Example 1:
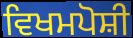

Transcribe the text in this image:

ਵਿਖਮਪੋਸ਼ੀ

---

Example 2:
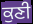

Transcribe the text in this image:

ਕੁਣੀ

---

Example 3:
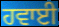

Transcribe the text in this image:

ਹਵਾਈ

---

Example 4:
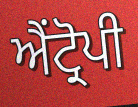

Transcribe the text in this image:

ਐਂਟ੍ਰੋਪੀ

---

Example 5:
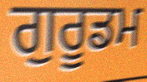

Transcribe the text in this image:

ਗੁਰੂਡਮ